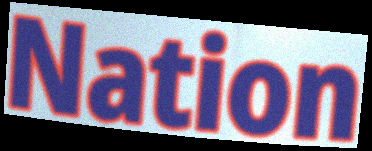
Nation